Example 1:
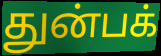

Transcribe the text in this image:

துன்பக்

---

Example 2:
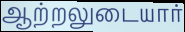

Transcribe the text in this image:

ஆற்றலுடையார்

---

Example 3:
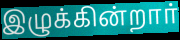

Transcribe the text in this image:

இழுக்கின்றார்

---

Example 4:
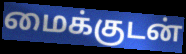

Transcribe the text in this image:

மைக்குடன்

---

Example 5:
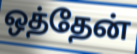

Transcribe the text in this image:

ஒத்தேன்